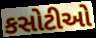
કસોટીઓ